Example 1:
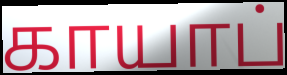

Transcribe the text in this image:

காயாப்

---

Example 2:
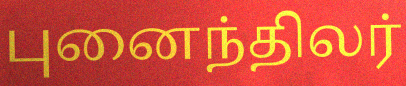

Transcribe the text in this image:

புனைந்திலர்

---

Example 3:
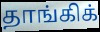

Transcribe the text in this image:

தாங்கிக்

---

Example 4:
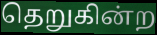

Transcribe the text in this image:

தெறுகின்ற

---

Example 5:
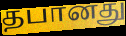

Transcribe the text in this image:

தபானது